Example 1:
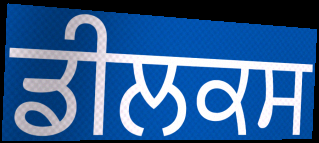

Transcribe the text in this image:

ਡੀਲਕਸ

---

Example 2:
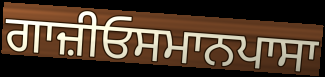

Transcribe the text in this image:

ਗਾਜ਼ੀਓਸਮਾਨਪਾਸਾ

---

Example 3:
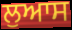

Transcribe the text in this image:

ਲੁਆਸ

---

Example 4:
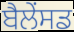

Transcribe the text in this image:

ਬੈਲੇਂਸਡ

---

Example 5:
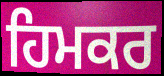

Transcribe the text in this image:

ਹਿਮਕਰ